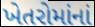
ખેતરોમાંનાં